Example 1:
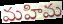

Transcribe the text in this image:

మహిమ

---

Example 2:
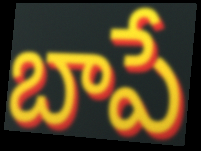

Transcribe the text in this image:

బాపే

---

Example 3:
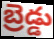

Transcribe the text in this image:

బ్రెడ్డు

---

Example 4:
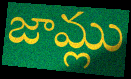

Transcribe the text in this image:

జామ్లు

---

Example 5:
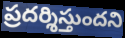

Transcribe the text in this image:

ప్రదర్శిస్తుందని